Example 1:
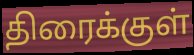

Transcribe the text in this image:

திரைக்குள்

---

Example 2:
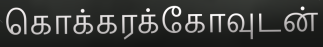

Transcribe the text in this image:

கொக்கரக்கோவுடன்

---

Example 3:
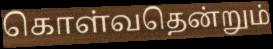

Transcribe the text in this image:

கொள்வதென்றும்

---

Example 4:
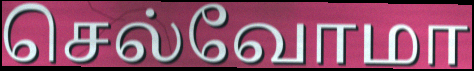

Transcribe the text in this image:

செல்வோமா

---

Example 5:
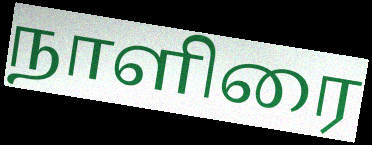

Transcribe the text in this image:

நாளிரை